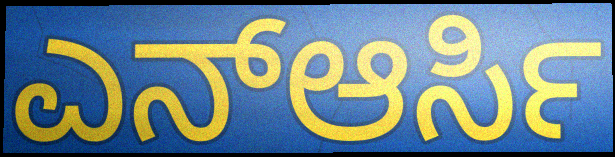
ಎನ್ಆರ್ಸಿ